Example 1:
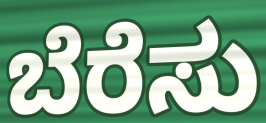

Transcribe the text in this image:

ಬೆರೆಸು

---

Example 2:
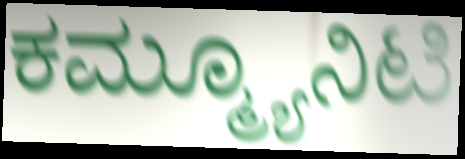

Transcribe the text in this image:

ಕಮ್ಮ್ಯೂನಿಟಿ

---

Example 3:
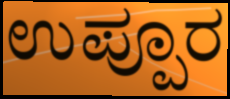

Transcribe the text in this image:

ಉಪ್ಪೂರ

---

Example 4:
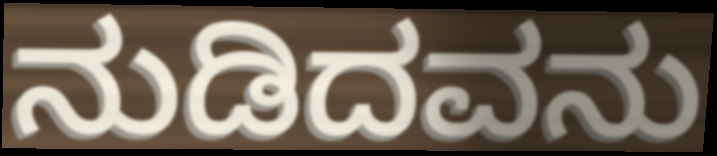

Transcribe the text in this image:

ನುಡಿದವನು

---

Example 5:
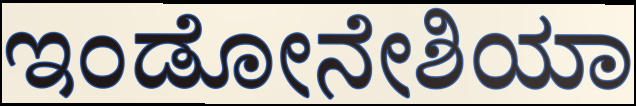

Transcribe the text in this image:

ಇಂಡೋನೇಶಿಯಾ